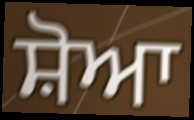
ਸ਼ੋਆ